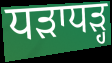
ਧੜਾਧੜ੍ਹ